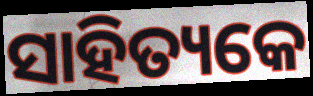
ସାହିତ୍ୟକେ